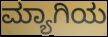
ಮ್ಯಾಗಿಯ